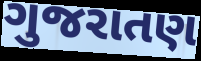
ગુજરાતણ